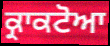
ਕ੍ਰਾਕਟੋਆ